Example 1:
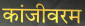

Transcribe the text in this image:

कांजीवरम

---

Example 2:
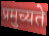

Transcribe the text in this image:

प्रमुच्यते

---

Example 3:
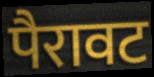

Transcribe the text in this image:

पैरावट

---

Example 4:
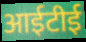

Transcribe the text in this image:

आईटीई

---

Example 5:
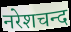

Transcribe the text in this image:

नरेशचन्द